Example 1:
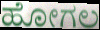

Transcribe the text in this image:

ಹೋಗಲ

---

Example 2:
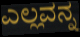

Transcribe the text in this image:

ಎಲ್ಲವನ್ನ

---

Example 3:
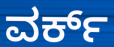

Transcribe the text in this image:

ವರ್ಕ್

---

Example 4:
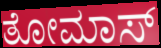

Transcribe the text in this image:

ತೋಮಾಸ್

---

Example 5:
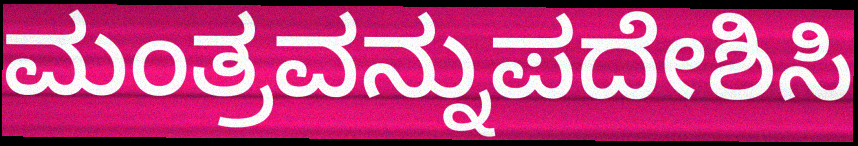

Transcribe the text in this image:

ಮಂತ್ರವನ್ನುಪದೇಶಿಸಿ